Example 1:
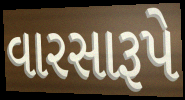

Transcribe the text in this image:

વારસારૂપે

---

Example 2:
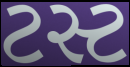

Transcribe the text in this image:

ટસ્ટ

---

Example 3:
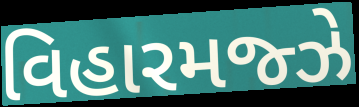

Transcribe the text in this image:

વિહારમજ્ઝે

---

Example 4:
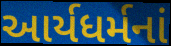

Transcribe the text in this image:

આર્યધર્મનાં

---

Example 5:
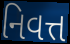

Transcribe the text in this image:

નિવત્ત